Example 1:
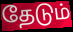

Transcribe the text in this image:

தேடும்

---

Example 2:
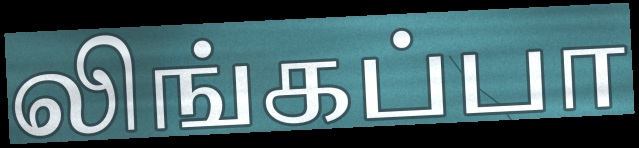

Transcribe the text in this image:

லிங்கப்பா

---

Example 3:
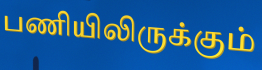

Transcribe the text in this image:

பணியிலிருக்கும்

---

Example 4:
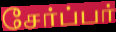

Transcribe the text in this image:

சேர்ப்பர்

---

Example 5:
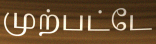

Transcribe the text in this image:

முற்பட்டே